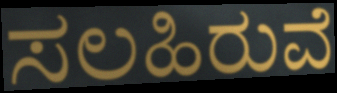
ಸಲಹಿರುವೆ